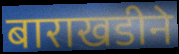
बाराखडीने